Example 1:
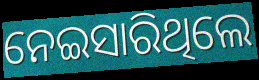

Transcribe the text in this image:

ନେଇସାରିଥିଲେ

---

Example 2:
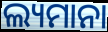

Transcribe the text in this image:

ଲ୍ୟମାନା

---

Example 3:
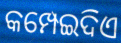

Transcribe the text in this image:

କମ୍ପେଇଦିଏ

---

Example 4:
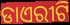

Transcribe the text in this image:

ଡାଏରୀଟି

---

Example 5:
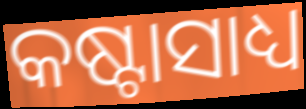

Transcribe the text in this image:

କଷ୍ଟାସାଧ୍ୟ